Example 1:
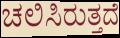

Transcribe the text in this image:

ಚಲಿಸಿರುತ್ತದೆ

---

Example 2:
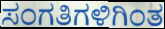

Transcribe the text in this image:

ಸಂಗತಿಗಳಿಗಿಂತ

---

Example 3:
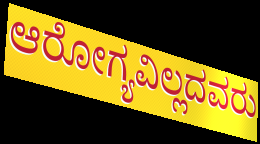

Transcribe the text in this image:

ಆರೋಗ್ಯವಿಲ್ಲದವರು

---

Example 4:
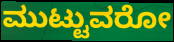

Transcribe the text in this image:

ಮುಟ್ಟುವರೋ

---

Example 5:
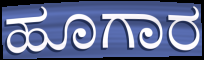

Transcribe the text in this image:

ಹೂಗಾರ